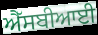
ਐੱਸਬੀਆਈ